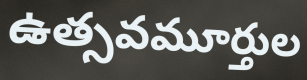
ఉత్సవమూర్తుల